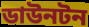
ডাউনটন